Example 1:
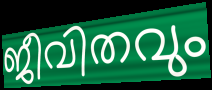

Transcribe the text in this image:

ജീവിതവും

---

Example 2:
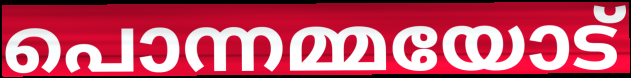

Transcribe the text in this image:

പൊന്നമ്മയോട്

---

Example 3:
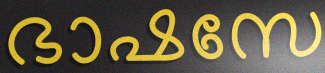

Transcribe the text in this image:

ഭാഷസേ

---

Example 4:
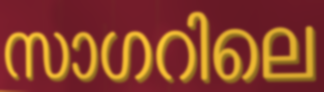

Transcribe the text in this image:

സാഗറിലെ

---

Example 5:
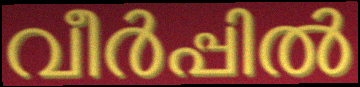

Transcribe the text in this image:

വീർപ്പിൽ